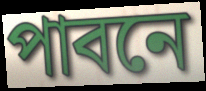
পাবনে